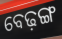
ବେଢ଼ଙ୍ଗ